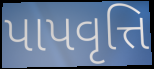
પાપવૃત્તિ